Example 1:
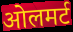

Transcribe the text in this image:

ओलमर्ट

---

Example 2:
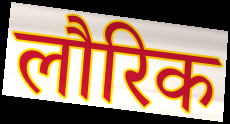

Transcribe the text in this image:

लौरिक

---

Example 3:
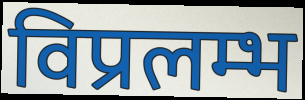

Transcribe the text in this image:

विप्रलम्भ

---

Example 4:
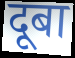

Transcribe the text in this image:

दूबा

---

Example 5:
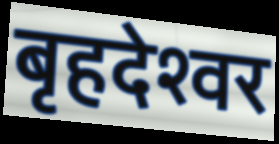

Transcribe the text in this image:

बृहदेश्वर